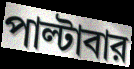
পাল্টাবার